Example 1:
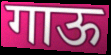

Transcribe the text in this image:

गाऊ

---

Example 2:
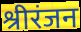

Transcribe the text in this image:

श्रीरंजन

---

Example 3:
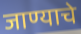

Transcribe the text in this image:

जाण्याचे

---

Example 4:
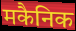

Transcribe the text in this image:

मकैनिक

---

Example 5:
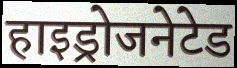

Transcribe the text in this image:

हाइड्रोजनेटेड